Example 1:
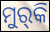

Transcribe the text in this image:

ମୁର୍‌କି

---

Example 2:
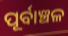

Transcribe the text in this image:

ପୂର୍ବାଞ୍ଚଳ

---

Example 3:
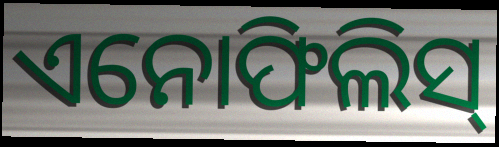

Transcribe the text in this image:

ଏନୋଫିଲିସ୍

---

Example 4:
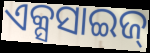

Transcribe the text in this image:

ଏକ୍ସସାଇଜ୍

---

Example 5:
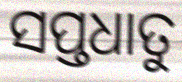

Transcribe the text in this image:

ସପ୍ତଧାତୁ